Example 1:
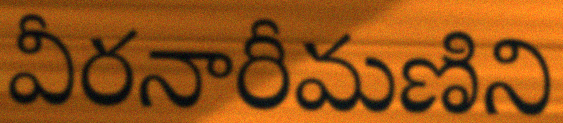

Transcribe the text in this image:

వీరనారీమణిని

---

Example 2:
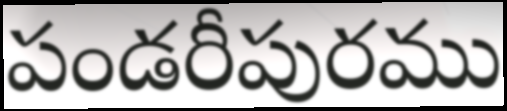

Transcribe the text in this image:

పండరీపురము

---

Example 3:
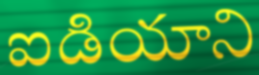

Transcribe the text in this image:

ఐడియాని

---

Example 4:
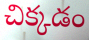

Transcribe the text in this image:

చిక్కడం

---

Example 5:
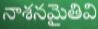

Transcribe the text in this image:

నాశనమైతివి